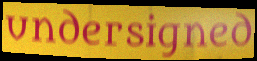
undersigned